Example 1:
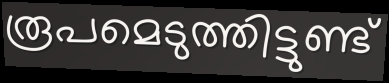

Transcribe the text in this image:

രൂപമെടുത്തിട്ടുണ്ട്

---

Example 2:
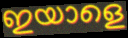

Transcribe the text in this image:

ഇയാളെ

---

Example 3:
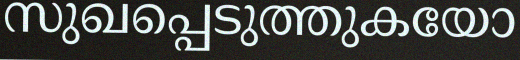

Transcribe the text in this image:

സുഖപ്പെടുത്തുകയോ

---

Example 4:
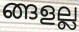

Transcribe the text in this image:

ങ്ങളല്ല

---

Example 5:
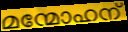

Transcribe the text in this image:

മന്മോഹന്